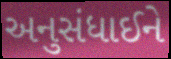
અનુસંધાઈને